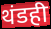
थंडही